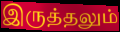
இருத்தலும்